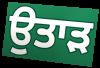
ਉਤਾਡ਼